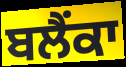
ਬਲੈਂਕਾ